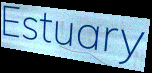
Estuary